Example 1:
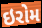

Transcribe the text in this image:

ઇરોમ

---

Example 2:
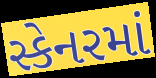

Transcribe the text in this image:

સ્કેનરમાં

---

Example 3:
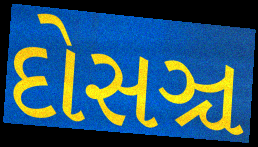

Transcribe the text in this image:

દોસઞ્ચ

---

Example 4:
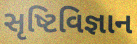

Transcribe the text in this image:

સૃષ્ટિવિજ્ઞાન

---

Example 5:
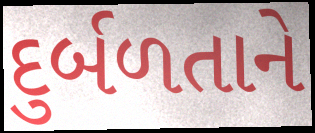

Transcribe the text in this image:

દુર્બળતાને